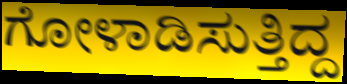
ಗೋಳಾಡಿಸುತ್ತಿದ್ದ